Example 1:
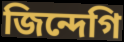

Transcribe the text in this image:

জিন্দেগি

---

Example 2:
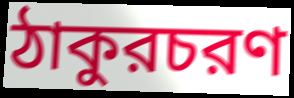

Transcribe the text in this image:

ঠাকুরচরণ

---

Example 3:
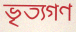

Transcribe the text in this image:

ভৃত্যগণ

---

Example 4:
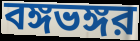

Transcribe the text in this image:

বঙ্গভঙ্গর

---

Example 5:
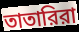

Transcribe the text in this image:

তাতারিরা